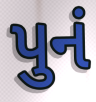
પુનં